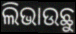
ଲିଭାଉଛୁ